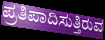
ಪ್ರತಿಪಾದಿಸುತ್ತಿರುವ